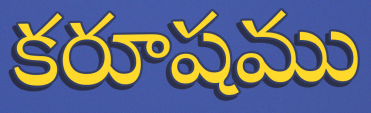
కరూషము